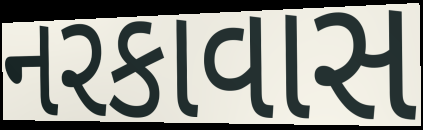
નરકાવાસ